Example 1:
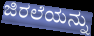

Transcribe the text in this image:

ಜಿರಲೆಯನ್ನು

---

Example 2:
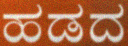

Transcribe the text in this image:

ಹಡದ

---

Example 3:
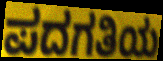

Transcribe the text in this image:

ಪದಗತಿಯ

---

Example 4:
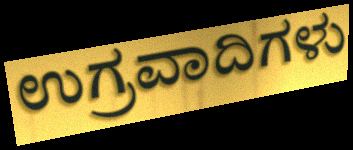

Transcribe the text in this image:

ಉಗ್ರವಾದಿಗಳು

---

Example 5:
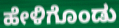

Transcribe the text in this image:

ಹೇಳಿಗೊಂಡು